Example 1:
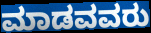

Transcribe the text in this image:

ಮಾಡವವರು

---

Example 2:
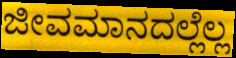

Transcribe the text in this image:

ಜೀವಮಾನದಲ್ಲೆಲ್ಲ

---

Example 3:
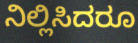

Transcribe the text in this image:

ನಿಲ್ಲಿಸಿದರೂ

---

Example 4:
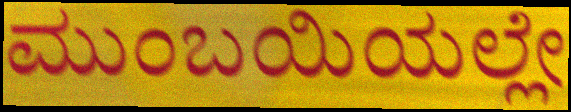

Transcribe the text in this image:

ಮುಂಬಯಿಯಲ್ಲೇ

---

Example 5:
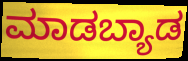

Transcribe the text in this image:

ಮಾಡಬ್ಯಾಡ